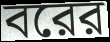
বরের